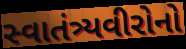
સ્વાતંત્ર્યવીરોનો